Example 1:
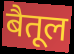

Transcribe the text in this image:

बैतूल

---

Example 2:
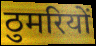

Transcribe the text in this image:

ठुमरियों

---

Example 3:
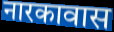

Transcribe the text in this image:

नारकावास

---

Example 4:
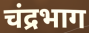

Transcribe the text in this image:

चंद्रभाग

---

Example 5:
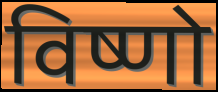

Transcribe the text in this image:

विष्णो